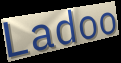
Ladoo